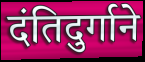
दंतिदुर्गाने